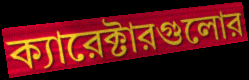
ক্যারেক্টারগুলোর